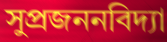
সুপ্রজননবিদ্যা